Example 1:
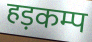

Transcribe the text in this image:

हड़कम्‍प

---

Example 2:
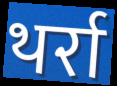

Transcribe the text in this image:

थर्रा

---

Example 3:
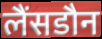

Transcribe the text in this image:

लैंसडौन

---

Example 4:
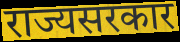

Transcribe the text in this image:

राज्यसरकार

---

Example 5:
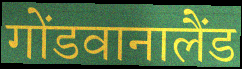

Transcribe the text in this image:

गोंडवानालैंड